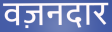
वज़नदार